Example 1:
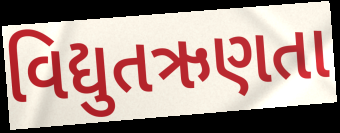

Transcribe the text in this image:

વિદ્યુતઋણતા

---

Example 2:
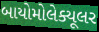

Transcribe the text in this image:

બાયોમોલેક્યૂલર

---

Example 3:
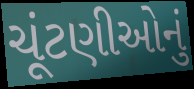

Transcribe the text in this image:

ચૂંટણીઓનું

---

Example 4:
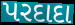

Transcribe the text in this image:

પરદાદા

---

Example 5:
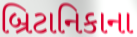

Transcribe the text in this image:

બ્રિટાનિકાના